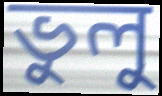
ভুলু